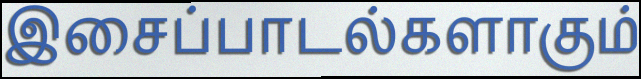
இசைப்பாடல்களாகும்